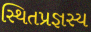
સ્થિતપ્રજ્ઞસ્ય